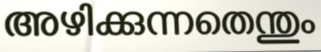
അഴിക്കുന്നതെന്തും